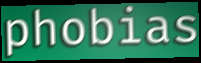
phobias